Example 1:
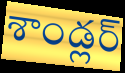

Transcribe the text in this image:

శాండ్లర్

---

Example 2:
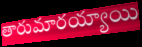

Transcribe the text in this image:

తారుమారయ్యాయి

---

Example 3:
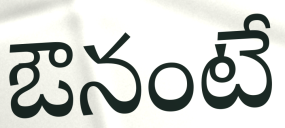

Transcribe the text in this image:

ఔనంటే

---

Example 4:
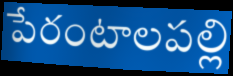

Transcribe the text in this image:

పేరంటాలపల్లి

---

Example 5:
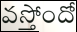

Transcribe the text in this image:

వస్తోందో